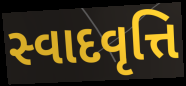
સ્વાદવૃત્તિ